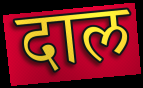
दाल